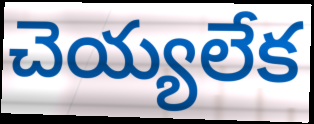
చెయ్యలేక